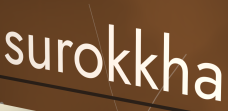
surokkha